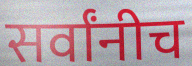
सर्वांनीच